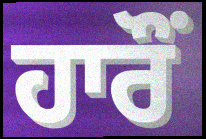
ਹਾਰੌਂ